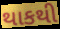
થાકથી